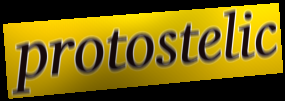
protostelic